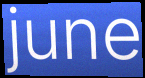
june